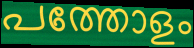
പത്തോളം